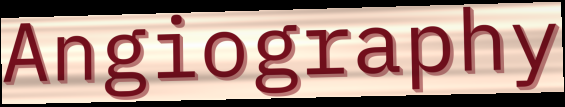
Angiography